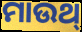
ମାଉଥ୍